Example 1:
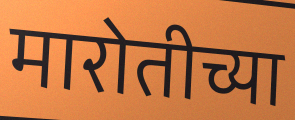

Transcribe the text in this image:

मारोतीच्या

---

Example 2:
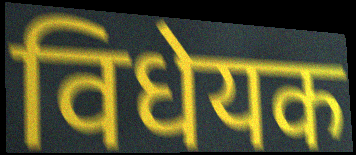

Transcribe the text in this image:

विधेयक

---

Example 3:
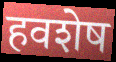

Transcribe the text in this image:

हवशेष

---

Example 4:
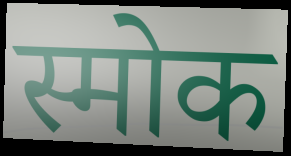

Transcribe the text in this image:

स्मोक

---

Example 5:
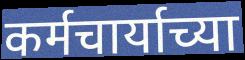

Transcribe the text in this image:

कर्मचार्याच्या